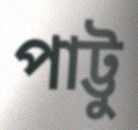
পাট্টু